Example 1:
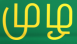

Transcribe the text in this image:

முழ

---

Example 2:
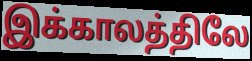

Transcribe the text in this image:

இக்காலத்திலே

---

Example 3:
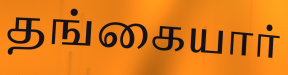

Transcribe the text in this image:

தங்கையார்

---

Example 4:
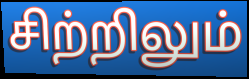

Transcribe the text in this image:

சிற்றிலும்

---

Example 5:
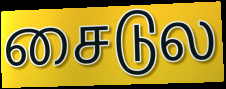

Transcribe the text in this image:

சைடுல